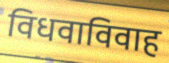
विधवाविवाह